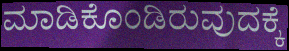
ಮಾಡಿಕೊಂಡಿರುವುದಕ್ಕೆ